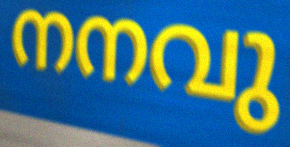
നനവു